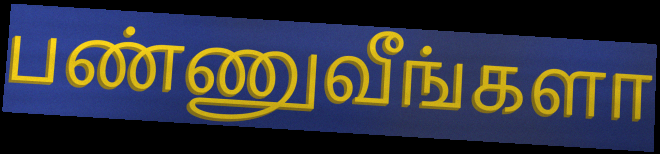
பண்ணுவீங்களா